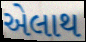
એલાથ